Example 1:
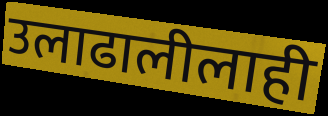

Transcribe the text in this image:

उलाढालीलाही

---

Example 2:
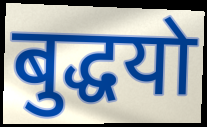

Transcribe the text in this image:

बुद्धयो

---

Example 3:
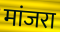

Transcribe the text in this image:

मांजरा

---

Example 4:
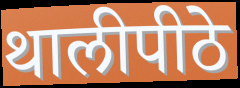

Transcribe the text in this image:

थालीपीठे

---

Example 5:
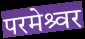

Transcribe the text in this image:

परमेश्र्वर